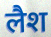
लैश